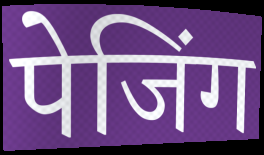
पेजिंग